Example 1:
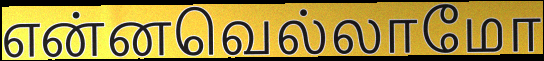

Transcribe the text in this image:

என்னவெல்லாமோ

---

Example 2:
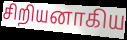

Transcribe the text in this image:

சிறியனாகிய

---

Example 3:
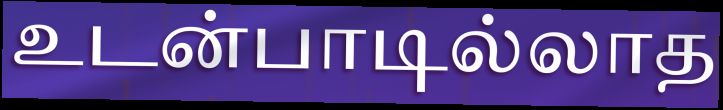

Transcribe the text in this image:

உடன்பாடில்லாத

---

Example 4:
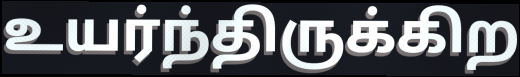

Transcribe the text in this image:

உயர்ந்திருக்கிற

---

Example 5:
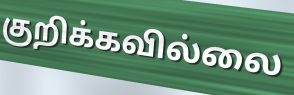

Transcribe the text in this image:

குறிக்கவில்லை